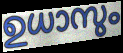
ഉധാസും